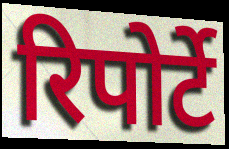
रिपोर्टे